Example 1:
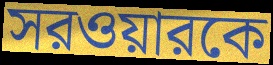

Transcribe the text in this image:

সরওয়ারকে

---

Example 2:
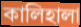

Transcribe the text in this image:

কালিহালা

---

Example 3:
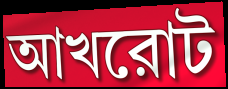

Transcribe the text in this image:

আখরোট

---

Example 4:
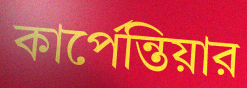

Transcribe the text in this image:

কার্পেন্তিয়ার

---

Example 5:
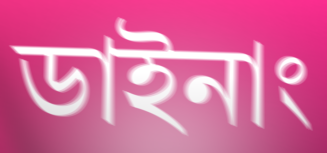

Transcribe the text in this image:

ডাইনাং